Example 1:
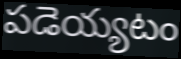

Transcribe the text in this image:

పడెయ్యటం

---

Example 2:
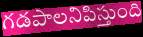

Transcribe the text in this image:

గడపాలనిపిస్తుంది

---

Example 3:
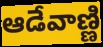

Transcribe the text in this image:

ఆడేవాణ్ణి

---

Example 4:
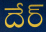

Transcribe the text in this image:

దేర్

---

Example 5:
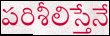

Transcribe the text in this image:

పరిశీలిస్తేనే